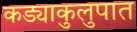
कड्याकुलुपात